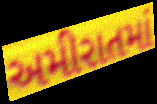
અમીરાતમાં